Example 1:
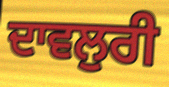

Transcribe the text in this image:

ਦਾਵਲੁਰੀ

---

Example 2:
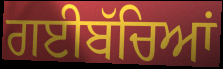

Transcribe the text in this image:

ਗਈਬੱਚਿਆਂ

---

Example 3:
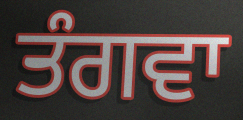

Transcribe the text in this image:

ਤੰਗਵਾ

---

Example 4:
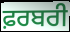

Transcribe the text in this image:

ਫ਼ਰਬਰੀ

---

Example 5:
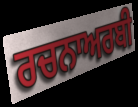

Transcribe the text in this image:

ਰਚਨਾਅਰਬੀ